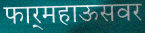
फार्महाऊसवर